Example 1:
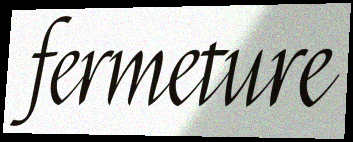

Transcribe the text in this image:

fermeture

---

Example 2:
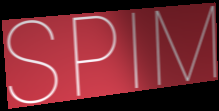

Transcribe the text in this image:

SPIM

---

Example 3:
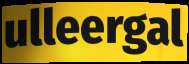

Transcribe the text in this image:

ulleergal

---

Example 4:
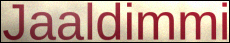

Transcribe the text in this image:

Jaaldimmi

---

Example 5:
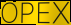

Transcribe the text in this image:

OPEX